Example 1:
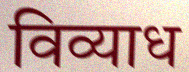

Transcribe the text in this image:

विव्याध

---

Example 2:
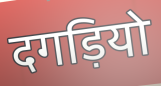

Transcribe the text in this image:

दगड़ियो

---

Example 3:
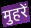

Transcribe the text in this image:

मुहरें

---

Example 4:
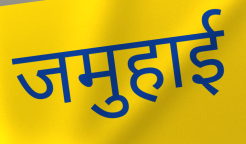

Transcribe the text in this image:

जमुहाई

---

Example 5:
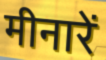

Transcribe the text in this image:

मीनारें